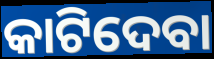
କାଟିଦେବା